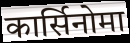
कार्सिनोमा